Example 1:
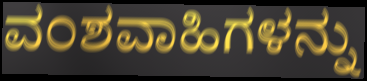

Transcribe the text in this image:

ವಂಶವಾಹಿಗಳನ್ನು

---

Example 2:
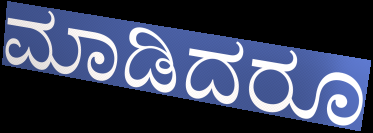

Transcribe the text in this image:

ಮಾಡಿದರೂ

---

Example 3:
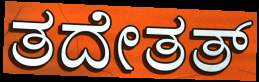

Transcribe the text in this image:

ತದೇತತ್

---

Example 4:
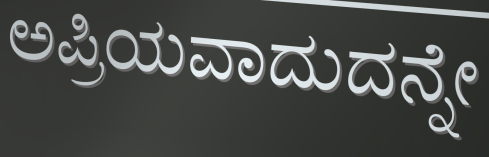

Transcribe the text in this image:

ಅಪ್ರಿಯವಾದುದನ್ನೇ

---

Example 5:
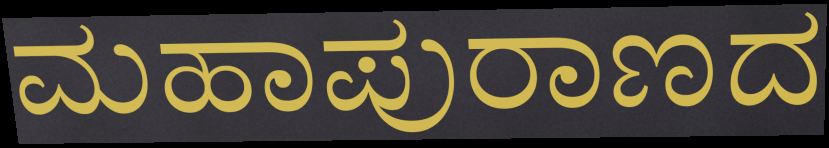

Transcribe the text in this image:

ಮಹಾಪುರಾಣದ